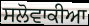
ਸਲੋਵਾਕੀਆ